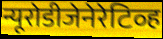
न्यूरोडीजेनेरेटिव्ह